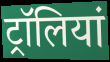
ट्रॉलियां